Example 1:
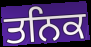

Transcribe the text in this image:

ਤਨਿਕ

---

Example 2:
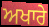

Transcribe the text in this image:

ਅਖਾਰੇ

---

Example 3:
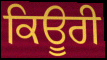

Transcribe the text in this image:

ਕਿਊਰੀ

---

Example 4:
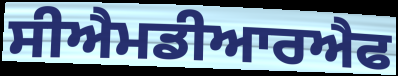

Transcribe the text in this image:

ਸੀਐਮਡੀਆਰਐਫ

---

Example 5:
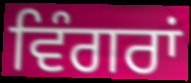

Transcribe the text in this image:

ਵਿੰਗਰਾਂ